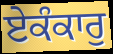
ਏਕੰਕਾਰੁ